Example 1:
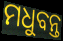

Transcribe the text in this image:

ମଧୁବନ୍ତ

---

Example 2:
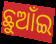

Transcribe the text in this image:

ଛୁଆଁଇ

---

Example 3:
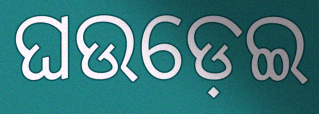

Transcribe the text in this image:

ଘଉଡ଼େଇ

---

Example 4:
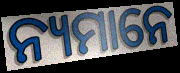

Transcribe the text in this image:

ନ୍ୟମାନେ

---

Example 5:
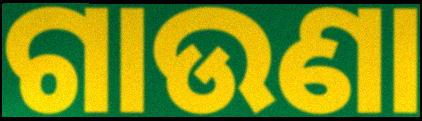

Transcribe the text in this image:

ଗାଉଣା